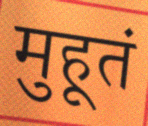
मुहूतं